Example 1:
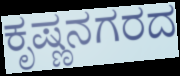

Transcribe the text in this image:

ಕೃಷ್ಣನಗರದ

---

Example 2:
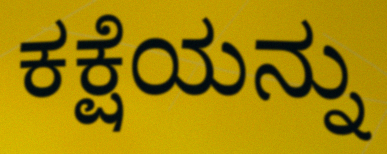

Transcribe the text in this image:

ಕಕ್ಷೆಯನ್ನು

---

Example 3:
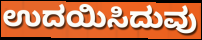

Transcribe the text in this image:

ಉದಯಿಸಿದುವು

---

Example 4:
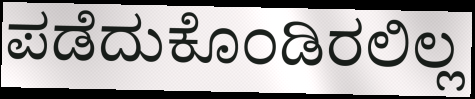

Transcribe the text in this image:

ಪಡೆದುಕೊಂಡಿರಲಿಲ್ಲ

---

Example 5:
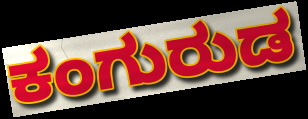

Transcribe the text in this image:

ಕಂಗುರುಡ